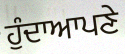
ਹੁੰਦਾਆਪਣੇ